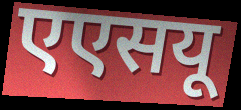
एएसयू